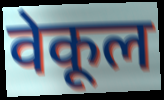
वेकूल